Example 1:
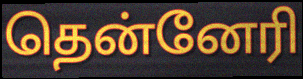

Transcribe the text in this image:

தென்னேரி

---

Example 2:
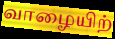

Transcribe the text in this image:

வாழையிற்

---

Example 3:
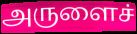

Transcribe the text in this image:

அருளைச்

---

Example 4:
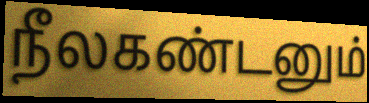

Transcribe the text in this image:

நீலகண்டனும்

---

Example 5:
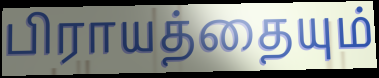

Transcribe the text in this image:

பிராயத்தையும்